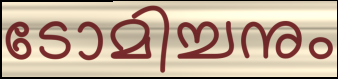
ടോമിച്ചനും